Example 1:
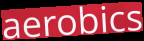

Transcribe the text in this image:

aerobics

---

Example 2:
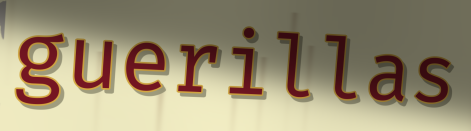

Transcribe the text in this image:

guerillas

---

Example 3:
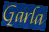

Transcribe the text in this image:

Garla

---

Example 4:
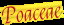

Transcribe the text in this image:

Poaceae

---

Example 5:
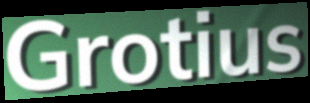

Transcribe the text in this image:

Grotius